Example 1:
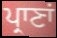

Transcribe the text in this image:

ਪ੍ਰਾਣਾਂ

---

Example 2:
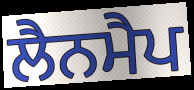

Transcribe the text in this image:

ਲੈਨਮੈਪ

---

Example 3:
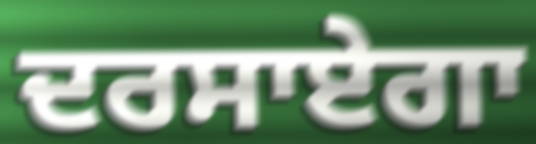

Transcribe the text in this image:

ਦਰਸਾਏਗਾ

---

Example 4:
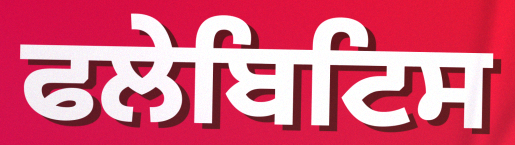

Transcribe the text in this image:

ਫਲੇਬਿਟਿਸ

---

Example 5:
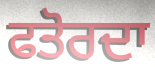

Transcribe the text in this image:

ਫਤੋਰਦਾ